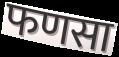
फणसा